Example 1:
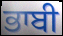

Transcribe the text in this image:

ਭਾਬੀ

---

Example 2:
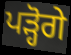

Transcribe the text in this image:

ਪੜ੍ਹੋਗੇ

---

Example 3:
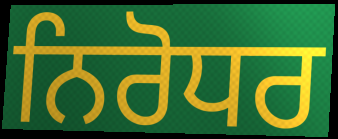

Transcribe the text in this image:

ਨਿਰੋਧਰ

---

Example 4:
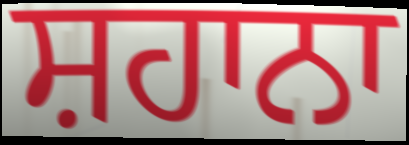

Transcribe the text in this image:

ਸ਼ਹਾਨਾ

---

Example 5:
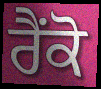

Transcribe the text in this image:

ਰੈਂਕੋ